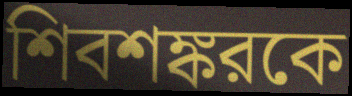
শিবশঙ্করকে